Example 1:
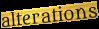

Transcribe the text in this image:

alterations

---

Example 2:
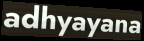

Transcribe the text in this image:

adhyayana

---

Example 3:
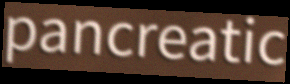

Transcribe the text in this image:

pancreatic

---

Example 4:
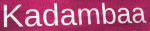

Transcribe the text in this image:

Kadambaa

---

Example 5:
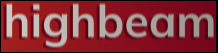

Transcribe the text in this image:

highbeam